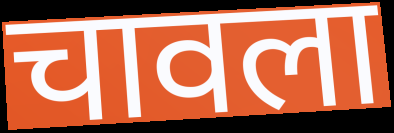
चावला